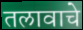
तलावाचे